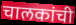
चालकांची